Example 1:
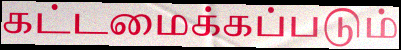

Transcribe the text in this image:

கட்டமைக்கப்படும்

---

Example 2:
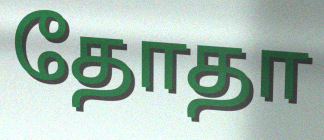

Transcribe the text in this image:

தோதா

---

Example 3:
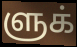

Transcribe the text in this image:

ளுக்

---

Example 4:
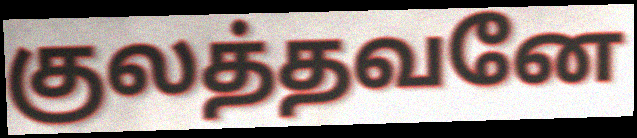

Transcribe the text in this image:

குலத்தவனே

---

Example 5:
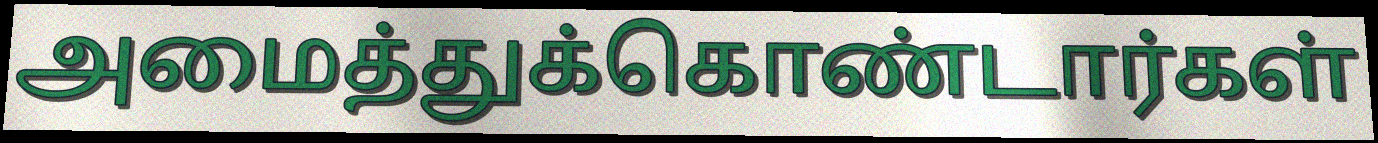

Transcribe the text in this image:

அமைத்துக்கொண்டார்கள்